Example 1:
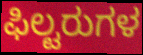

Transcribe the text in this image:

ಫಿಲ್ಟರುಗಳ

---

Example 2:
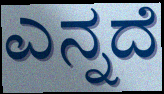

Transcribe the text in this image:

ಎನ್ನದೆ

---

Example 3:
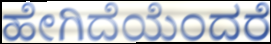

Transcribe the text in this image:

ಹೇಗಿದೆಯೆಂದರೆ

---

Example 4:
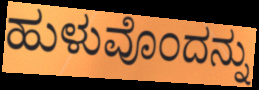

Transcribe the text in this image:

ಹುಳುವೊಂದನ್ನು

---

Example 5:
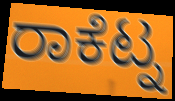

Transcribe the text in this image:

ರಾಕೆಟ್ನ